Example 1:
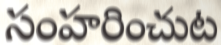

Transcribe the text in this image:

సంహరించుట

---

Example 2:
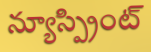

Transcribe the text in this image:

న్యూస్ప్రింట్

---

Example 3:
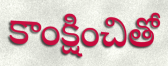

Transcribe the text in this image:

కాంక్షించితో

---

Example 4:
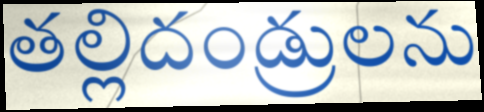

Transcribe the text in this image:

తల్లిదండ్రులను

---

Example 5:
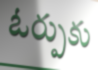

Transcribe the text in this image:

ఓర్పుకు